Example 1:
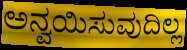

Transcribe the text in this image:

ಅನ್ವಯಿಸುವುದಿಲ್ಲ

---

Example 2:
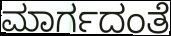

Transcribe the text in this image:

ಮಾರ್ಗದಂತೆ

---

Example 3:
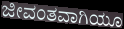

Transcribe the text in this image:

ಜೀವಂತವಾಗಿಯೂ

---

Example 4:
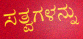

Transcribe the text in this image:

ಸತ್ವಗಳನ್ನು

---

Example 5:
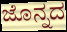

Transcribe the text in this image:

ಜೊನ್ನದ